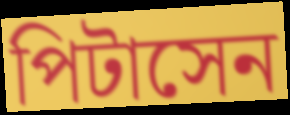
পিটাসেন